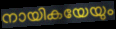
നായികയേയും